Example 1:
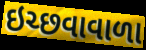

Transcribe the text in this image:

ઇચ્છવાવાળા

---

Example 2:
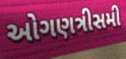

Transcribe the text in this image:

ઓગણત્રીસમી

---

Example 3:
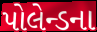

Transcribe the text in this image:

પોલેન્ડના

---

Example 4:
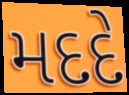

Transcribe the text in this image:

મદદે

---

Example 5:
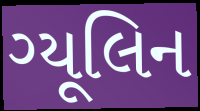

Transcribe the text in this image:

ગ્યૂલિન